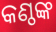
କଣ୍ଠଙ୍କ